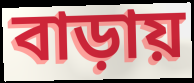
বাড়ায়